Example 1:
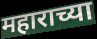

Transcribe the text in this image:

महाराच्या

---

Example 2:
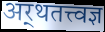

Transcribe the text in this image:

अर्थतत्त्वज्ञ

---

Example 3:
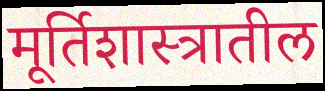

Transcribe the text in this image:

मूर्तिशास्त्रातील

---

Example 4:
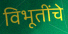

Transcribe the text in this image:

विभूतींचे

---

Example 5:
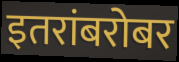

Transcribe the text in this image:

इतरांबरोबर